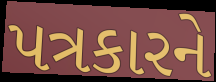
પત્રકારને